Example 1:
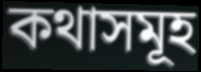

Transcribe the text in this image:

কথাসমূহ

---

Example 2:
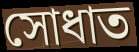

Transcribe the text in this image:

সোধাত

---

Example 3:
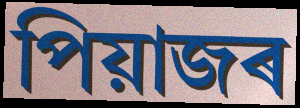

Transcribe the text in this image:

পিয়াজৰ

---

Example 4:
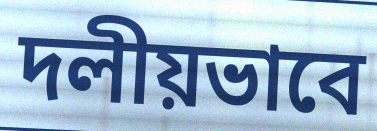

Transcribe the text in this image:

দলীয়ভাবে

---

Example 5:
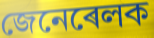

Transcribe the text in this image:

জেনেৰেলক